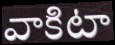
వాకిటా